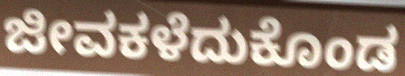
ಜೀವಕಳೆದುಕೊಂಡ